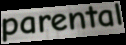
parental